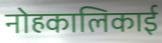
नोहकालिकाई